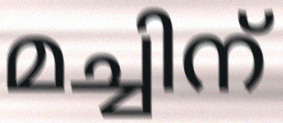
മച്ചിന്